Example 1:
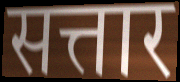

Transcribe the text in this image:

सत्तार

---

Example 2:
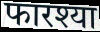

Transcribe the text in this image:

फारश्या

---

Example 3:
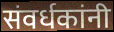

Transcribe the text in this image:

संवर्धकांनी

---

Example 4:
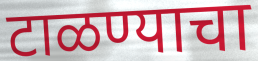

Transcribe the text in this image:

टाळण्याचा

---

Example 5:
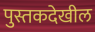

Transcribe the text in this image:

पुस्तकदेखील